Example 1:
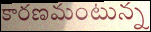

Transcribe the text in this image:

కారణమంటున్న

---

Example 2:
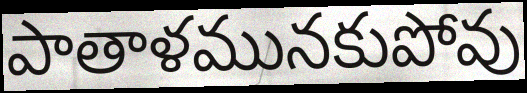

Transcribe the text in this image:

పాతాళమునకుపోవు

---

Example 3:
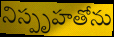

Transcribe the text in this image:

నిస్పృహతోను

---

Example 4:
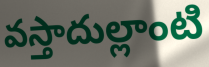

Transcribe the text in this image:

వస్తాదుల్లాంటి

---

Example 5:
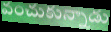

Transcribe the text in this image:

వంచుకున్నాడు